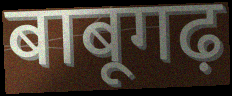
बाबूगढ़